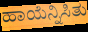
ಹಾಯೆನ್ನಿಸಿತು